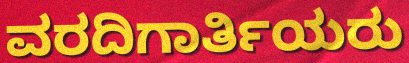
ವರದಿಗಾರ್ತಿಯರು